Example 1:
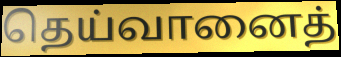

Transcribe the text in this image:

தெய்வானைத்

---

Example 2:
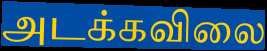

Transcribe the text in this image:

அடக்கவிலை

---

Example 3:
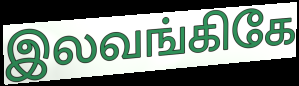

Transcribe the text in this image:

இலவங்கிகே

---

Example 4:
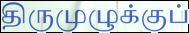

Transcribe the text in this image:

திருமுழுக்குப்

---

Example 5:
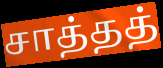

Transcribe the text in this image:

சாத்தத்